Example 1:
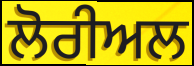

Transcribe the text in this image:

ਲੋਰੀਅਲ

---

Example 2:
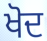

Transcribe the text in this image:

ਖੋਦ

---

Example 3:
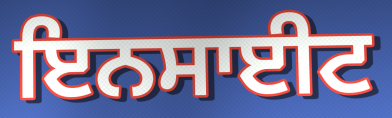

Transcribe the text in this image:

ਇਨਸਾਈਟ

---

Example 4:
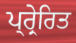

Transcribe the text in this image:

ਪ੍ਰ੍ਰੇਰਿਤ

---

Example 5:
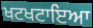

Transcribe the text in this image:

ਖਟਖਟਾਇਆ